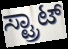
ಸ್ಟ್ರಾಟ್